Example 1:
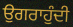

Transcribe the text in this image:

ਉਗਰਾਹੁੰਦੀ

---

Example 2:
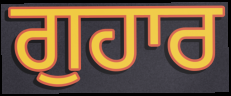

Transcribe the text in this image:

ਗੁਹਾਰ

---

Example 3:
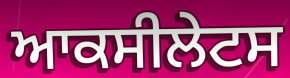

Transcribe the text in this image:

ਆਕਸੀਲੇਟਸ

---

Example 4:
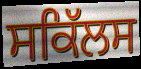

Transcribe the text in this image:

ਸਕਿੱਲਸ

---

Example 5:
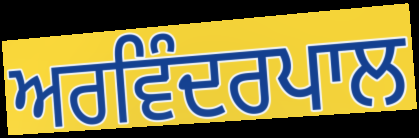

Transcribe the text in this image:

ਅਰਵਿੰਦਰਪਾਲ